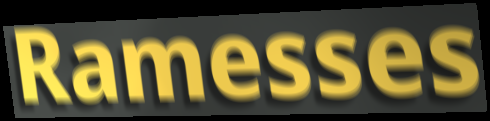
Ramesses